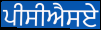
ਪੀਸੀਐਸਏ